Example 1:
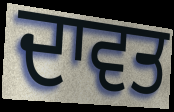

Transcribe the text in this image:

ਦਾਵਤ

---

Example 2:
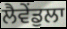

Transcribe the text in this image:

ਲੈਵੇਂਡੁਲਾ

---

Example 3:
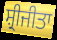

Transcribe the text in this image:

ਸ਼੍ਰੀਜੀਤਾ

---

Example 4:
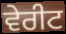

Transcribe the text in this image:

ਵੇਰੀਟ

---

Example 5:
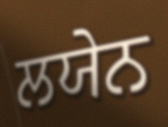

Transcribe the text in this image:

ਲਯੇਨ